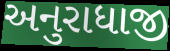
અનુરાધાજી